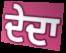
ਦੇਦਾ